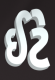
ઈટે